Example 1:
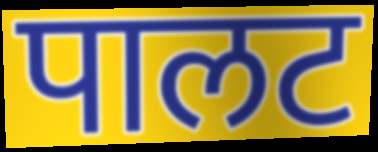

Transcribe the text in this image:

पालट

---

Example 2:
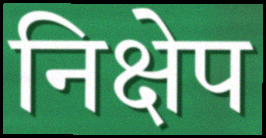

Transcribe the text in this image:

निक्षेप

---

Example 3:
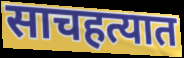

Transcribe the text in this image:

साचहत्यात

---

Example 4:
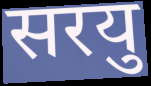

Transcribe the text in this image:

सरयु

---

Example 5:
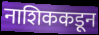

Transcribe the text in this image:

नाशिककडून